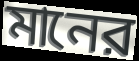
মানের